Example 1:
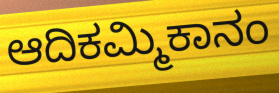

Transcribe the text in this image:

ಆದಿಕಮ್ಮಿಕಾನಂ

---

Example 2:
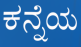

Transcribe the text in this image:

ಕನ್ನೆಯ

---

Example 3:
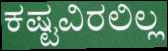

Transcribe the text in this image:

ಕಷ್ಟವಿರಲಿಲ್ಲ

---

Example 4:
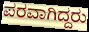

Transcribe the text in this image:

ಪರವಾಗಿದ್ದರು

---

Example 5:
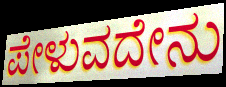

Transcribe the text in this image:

ಪೇಳುವದೇನು